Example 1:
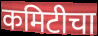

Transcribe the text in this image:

कमिटीचा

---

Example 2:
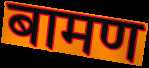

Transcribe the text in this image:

बामण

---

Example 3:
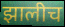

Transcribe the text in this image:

झालीच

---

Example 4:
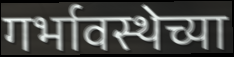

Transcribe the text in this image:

गर्भावस्थेच्या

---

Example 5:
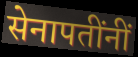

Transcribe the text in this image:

सेनापतींनीं